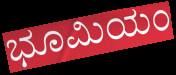
ಭೂಮಿಯಂ